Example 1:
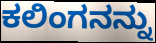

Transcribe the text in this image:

ಕಲಿಂಗನನ್ನು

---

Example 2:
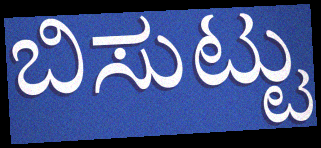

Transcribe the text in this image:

ಬಿಸುಟ್ಟು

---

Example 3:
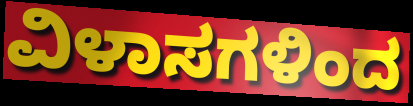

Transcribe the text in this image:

ವಿಳಾಸಗಳಿಂದ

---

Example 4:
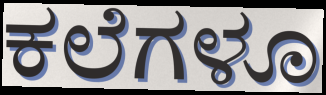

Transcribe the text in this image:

ಕಲೆಗಳೂ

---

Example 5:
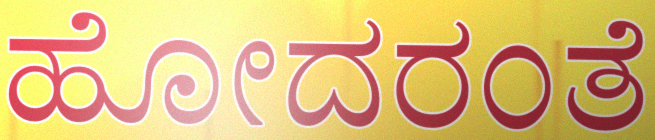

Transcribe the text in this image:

ಹೋದರಂತೆ